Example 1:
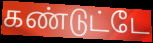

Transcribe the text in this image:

கண்டுட்டே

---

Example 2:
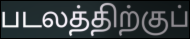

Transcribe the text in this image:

படலத்திற்குப்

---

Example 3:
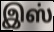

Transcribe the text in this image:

இஸ்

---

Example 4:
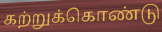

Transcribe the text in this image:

கற்றுக்கொண்டு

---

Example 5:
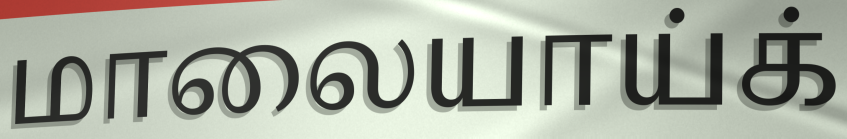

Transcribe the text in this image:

மாலையாய்க்